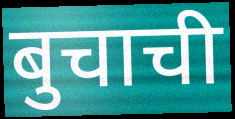
बुचाची